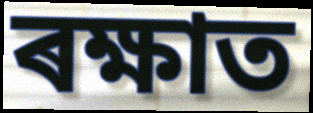
ৰক্ষাত